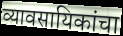
व्यावसायिकांचा